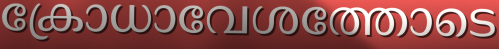
ക്രോധാവേശത്തോടെ